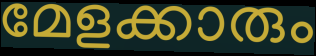
മേളക്കാരും